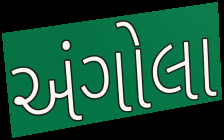
અંગોલા